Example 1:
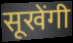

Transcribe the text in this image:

सूखेंगी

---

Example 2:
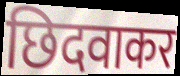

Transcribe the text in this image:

छिदवाकर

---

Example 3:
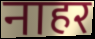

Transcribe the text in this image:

नाहर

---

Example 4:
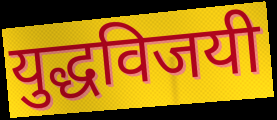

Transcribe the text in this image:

युद्धविजयी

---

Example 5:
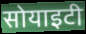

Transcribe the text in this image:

सोयाइटी